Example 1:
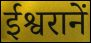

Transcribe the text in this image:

ईश्वरानें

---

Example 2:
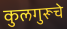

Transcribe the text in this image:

कुलगुरूचे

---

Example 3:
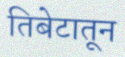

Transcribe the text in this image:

तिबेटातून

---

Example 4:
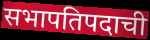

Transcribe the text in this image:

सभापतिपदाची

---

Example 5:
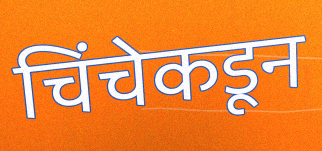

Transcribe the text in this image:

चिंचेकडून